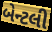
બેન્ટલી